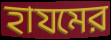
হাযমের